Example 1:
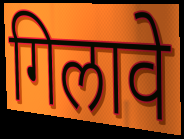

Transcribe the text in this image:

गिलावे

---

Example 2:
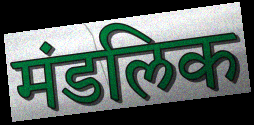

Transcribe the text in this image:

मंडलिक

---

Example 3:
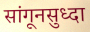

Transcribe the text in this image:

सांगूनसुध्दा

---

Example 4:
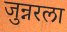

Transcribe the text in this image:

जुन्नरला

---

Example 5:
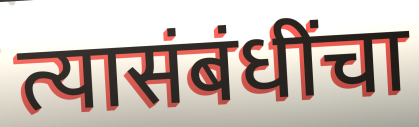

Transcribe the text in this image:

त्यासंबंधींचा